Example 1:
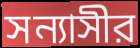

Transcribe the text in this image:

সন্যাসীর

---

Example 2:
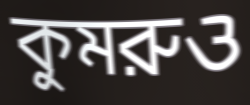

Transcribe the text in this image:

কুমরুও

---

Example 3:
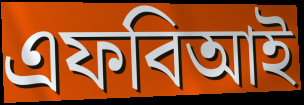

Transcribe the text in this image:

এফবিআই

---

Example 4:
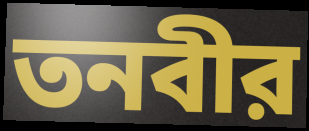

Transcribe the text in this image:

তনবীর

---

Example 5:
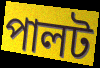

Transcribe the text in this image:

পালট